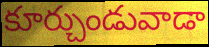
కూర్చుండువాడా